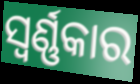
ସ୍ୱର୍ଣ୍ଣକାର